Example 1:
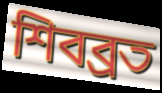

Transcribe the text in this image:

শিবব্রত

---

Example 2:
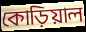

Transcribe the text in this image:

কোড়িয়াল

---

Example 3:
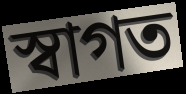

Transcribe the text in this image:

স্বাগত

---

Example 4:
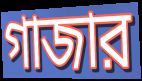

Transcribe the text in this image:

গাজার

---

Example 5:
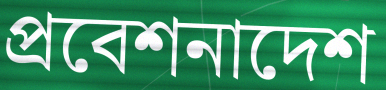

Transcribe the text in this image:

প্রবেশনাদেশ